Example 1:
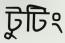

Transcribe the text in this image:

টুটিং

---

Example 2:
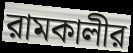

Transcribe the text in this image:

রামকালীর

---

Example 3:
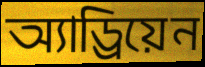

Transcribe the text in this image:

অ্যাড্রিয়েন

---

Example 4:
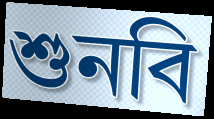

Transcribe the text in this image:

শুনবি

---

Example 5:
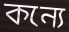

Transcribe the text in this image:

কন্যে